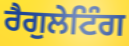
ਰੈਗੁਲੇਟਿੰਗ